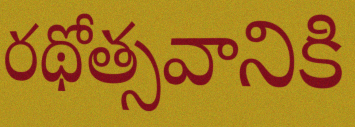
రథోత్సవానికి